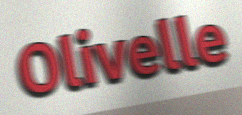
Olivelle